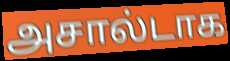
அசால்டாக